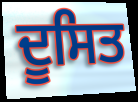
ਦੂਸਿਤ